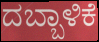
ದಬ್ಬಾಳಿಕೆ